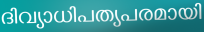
ദിവ്യാധിപത്യപരമായി